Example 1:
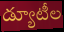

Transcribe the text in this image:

డ్యూటీల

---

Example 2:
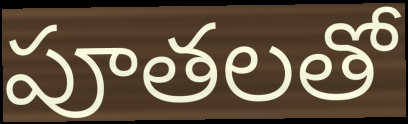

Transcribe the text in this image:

పూతలతో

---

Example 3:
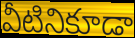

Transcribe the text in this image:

వీటినికూడా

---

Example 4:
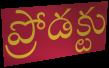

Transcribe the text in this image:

ప్రోడక్టు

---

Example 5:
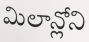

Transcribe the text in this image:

మిలాన్లోని